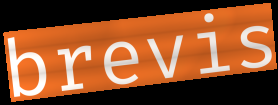
brevis